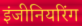
इंजीनियरिंग